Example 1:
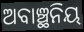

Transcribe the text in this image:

ଅବାଞ୍ଛନିୟ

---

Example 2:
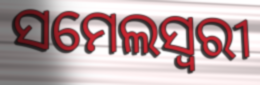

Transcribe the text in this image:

ସମେଲସ୍ୱରୀ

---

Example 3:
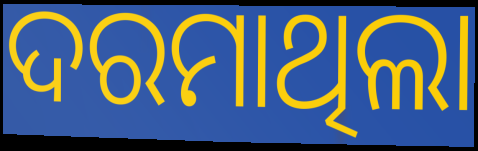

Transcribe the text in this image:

ଦରମାଥିଲା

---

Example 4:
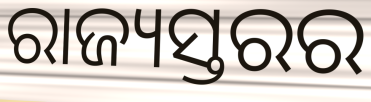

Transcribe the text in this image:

ରାଜ୍ୟସ୍ତରର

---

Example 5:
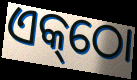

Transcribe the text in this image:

ଏକ୍‌ଠୋ